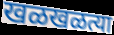
खळखळत्या